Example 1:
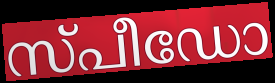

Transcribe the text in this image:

സ്പീഡോ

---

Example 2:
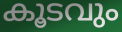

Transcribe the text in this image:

കൂടവും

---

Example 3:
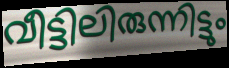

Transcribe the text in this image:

വീട്ടിലിരുന്നിട്ടും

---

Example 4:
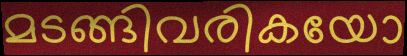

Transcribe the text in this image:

മടങ്ങിവരികയോ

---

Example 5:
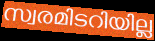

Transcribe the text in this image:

സ്വരമിടറിയില്ല